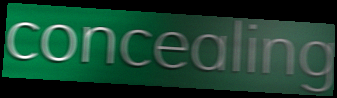
concealing